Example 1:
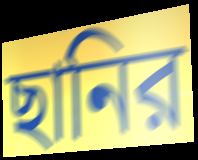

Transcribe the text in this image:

ছানির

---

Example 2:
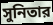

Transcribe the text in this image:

সুনিতার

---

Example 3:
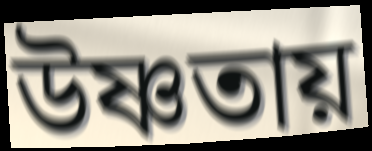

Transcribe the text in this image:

উষ্ণতায়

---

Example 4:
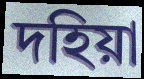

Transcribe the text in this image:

দহিয়া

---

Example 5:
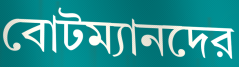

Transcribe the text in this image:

বোটম্যানদের